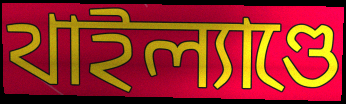
থাইল্যাণ্ডে